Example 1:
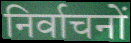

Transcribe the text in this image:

निर्वाचनों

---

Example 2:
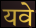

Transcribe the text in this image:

यवे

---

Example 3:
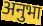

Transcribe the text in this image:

अनुभा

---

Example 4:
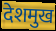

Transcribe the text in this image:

देशमुख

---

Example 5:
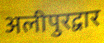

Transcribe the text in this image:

अलीपुरद्वार